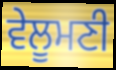
ਵੇਲੂਮਣੀ